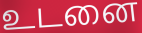
உடனை